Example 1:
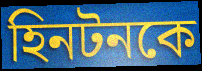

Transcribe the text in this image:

হিনটনকে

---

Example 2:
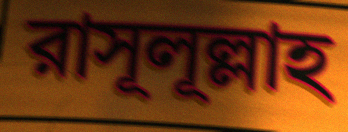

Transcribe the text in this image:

রাসূলূল্লাহ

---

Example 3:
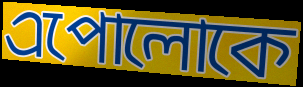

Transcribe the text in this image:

এপোলোকে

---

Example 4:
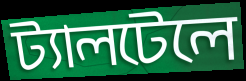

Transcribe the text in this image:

ট্যালটেলে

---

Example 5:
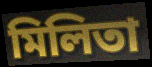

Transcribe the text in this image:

মিলিতা